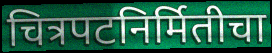
चित्रपटनिर्मितीचा